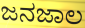
ಜನಜಾಲ